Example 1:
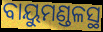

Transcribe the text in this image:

ବାୟୁମଣ୍ଡଳସ୍ଥ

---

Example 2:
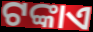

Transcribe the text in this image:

ଟଙ୍କାଏ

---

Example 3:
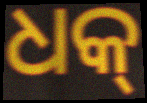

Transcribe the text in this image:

ଧକ୍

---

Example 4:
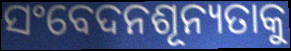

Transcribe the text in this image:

ସଂବେଦନଶୂନ୍ୟତାକୁ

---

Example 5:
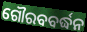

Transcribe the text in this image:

ଗୌରବବର୍ଦ୍ଧନ